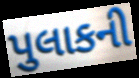
પુલાકની